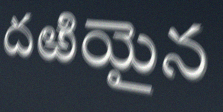
దఱియైన